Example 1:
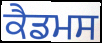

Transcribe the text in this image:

ਕੈਡਮਸ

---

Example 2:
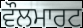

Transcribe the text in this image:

ਵੌਲਮਾਰਟ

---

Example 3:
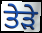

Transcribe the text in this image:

ਤੇੜੇ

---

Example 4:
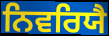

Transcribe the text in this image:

ਨਿਵਰਿਯੈ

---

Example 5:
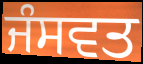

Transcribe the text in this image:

ਜੰਸਵਤ